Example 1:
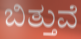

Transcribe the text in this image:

ಬಿತ್ತುವೆ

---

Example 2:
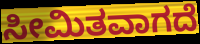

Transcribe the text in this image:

ಸೀಮಿತವಾಗದೆ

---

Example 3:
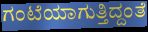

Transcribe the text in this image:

ಗಂಟೆಯಾಗುತ್ತಿದ್ದಂತೆ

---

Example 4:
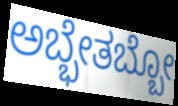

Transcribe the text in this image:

ಅಬ್ಭೇತಬ್ಬೋ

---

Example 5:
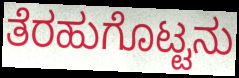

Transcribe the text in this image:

ತೆರಹುಗೊಟ್ಟನು